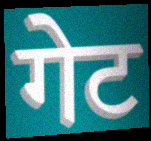
गेट